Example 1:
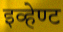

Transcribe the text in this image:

इव्हेण्ट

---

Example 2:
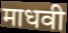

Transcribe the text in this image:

माधवी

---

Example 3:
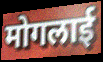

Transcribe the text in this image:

मोगलाई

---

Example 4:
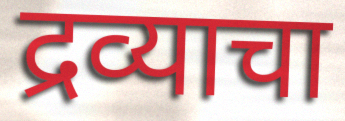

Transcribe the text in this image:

द्रव्याचा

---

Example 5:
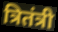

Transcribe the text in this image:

त्रितंत्री